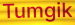
Tumgik